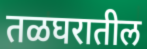
तळघरातील